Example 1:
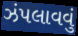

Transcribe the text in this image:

ઝંપલાવવું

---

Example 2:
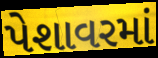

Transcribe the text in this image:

પેશાવરમાં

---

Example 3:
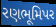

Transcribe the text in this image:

રણભૂમિપર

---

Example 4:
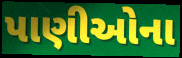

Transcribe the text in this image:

પાણીઓના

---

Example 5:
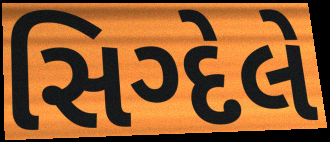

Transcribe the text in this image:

સિગ્દેલે